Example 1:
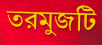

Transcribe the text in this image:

তরমুজটি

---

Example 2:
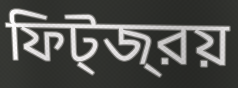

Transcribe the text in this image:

ফিট্‌জ্‌রয়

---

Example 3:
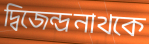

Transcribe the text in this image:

দ্বিজেন্দ্রনাথকে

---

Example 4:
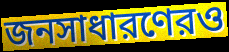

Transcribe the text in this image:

জনসাধারণেরও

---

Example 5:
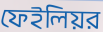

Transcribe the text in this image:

ফেইলিয়র